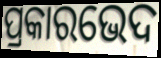
ପ୍ରକାରଭେଦ